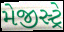
મેજીસ્ર્ટ્રે